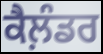
ਕੈਲ਼ੰਡਰ